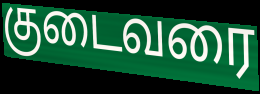
குடைவரை